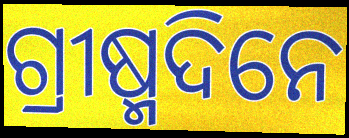
ଗ୍ରୀଷ୍ମଦିନେ